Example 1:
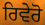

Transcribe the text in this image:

ਰਿਵੇਰੋ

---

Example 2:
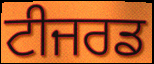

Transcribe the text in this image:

ਟੀਜਰਡ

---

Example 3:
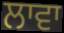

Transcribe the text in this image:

ਲਾਵਾ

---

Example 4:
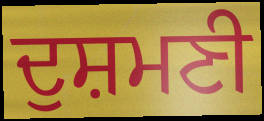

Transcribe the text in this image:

ਦੁਸ਼ਮਣੀ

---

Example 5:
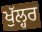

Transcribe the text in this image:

ਖੁੱਲ੍ਹਰ